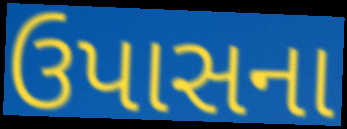
ઉપાસના